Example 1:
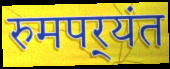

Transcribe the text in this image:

रुमपर्यंत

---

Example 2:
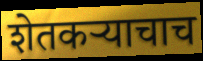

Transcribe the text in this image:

शेतकऱ्याचाच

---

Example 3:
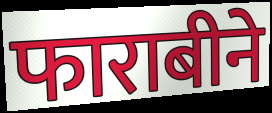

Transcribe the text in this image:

फाराबीने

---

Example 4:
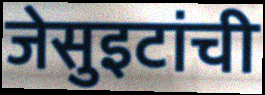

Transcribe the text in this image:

जेसुइटांची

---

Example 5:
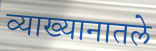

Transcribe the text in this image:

व्याख्यानातले